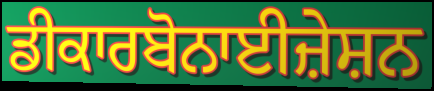
ਡੀਕਾਰਬੋਨਾਈਜ਼ੇਸ਼ਨ